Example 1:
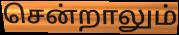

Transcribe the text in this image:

சென்றாலும்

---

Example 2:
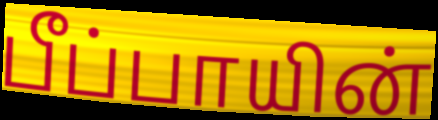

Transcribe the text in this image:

பீப்பாயின்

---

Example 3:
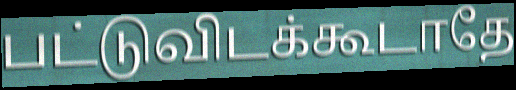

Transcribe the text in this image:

பட்டுவிடக்கூடாதே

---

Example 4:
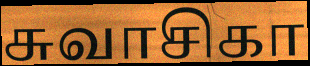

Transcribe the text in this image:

சுவாசிகா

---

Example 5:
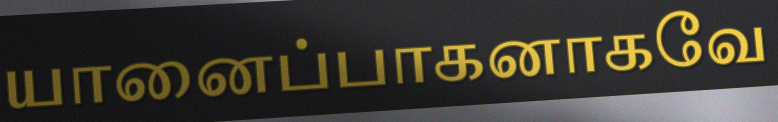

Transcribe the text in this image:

யானைப்பாகனாகவே